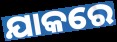
ଯାକରେ